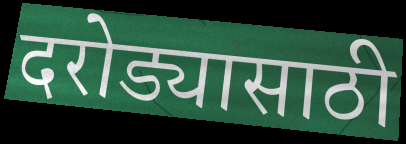
दरोड्यासाठी